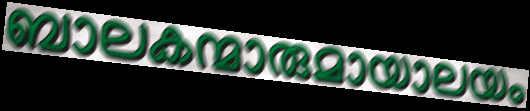
ബാലകന്മാരുമായാലയം